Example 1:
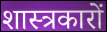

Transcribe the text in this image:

शास्त्रकारों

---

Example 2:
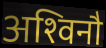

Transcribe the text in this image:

अश्विनौ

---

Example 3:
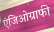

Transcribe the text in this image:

एंजिओग्राफी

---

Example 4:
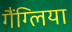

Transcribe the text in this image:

गैंग्लिया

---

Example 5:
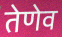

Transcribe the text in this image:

तेणेव